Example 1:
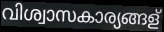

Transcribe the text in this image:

വിശ്വാസകാര്യങ്ങള്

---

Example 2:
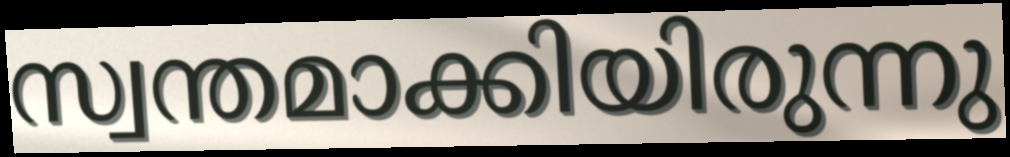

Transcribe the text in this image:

സ്വന്തമാക്കിയിരുന്നു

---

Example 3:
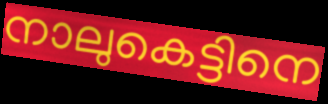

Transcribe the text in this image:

നാലുകെട്ടിനെ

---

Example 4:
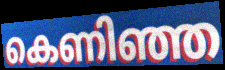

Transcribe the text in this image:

കെണിഞ്ഞ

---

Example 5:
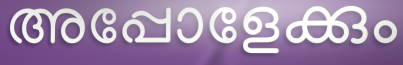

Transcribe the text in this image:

അപ്പോളേക്കും